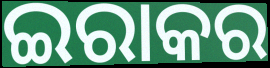
ଇରାକର